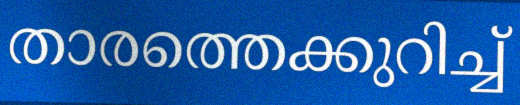
താരത്തെക്കുറിച്ച്